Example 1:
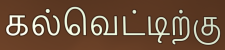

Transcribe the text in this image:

கல்வெட்டிற்கு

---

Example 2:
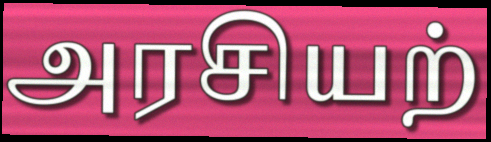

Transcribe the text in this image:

அரசியற்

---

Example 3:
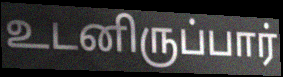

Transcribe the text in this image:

உடனிருப்பார்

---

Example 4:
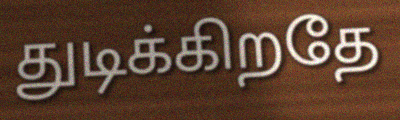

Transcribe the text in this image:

துடிக்கிறதே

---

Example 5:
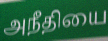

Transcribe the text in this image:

அநீதியை